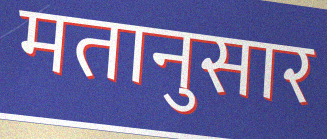
मतानुसार